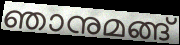
ഞാനുമങ്ങ്